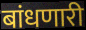
बांधणारी